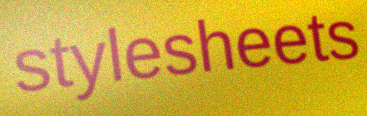
stylesheets